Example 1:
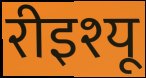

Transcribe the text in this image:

रीइश्यू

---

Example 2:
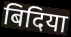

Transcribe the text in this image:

बिदिया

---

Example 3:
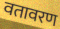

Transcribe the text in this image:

वतावरण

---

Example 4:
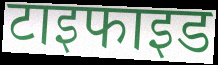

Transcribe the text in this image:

टाइफाइड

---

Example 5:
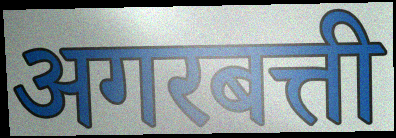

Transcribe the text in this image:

अगरबत्ती